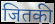
जितकी